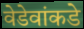
वेडेवांकडे